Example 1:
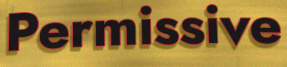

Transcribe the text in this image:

Permissive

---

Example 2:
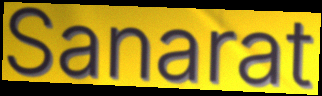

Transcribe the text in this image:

Sanarat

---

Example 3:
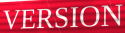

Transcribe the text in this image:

VERSION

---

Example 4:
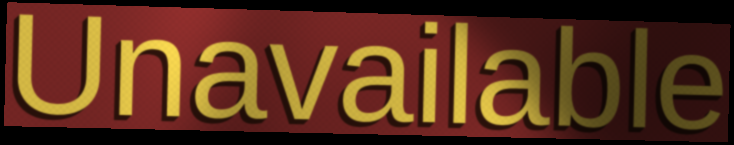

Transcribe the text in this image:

Unavailable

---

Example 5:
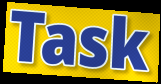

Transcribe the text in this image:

Task